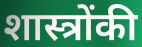
शास्त्रोंकी